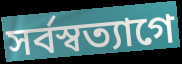
সর্বস্বত্যাগে